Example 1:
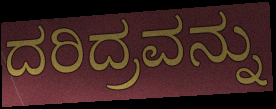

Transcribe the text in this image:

ದರಿದ್ರವನ್ನು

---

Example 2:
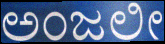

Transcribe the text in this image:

ಅಂಜಲೀ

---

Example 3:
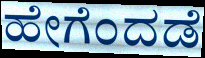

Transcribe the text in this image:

ಹೇಗೆಂದಡೆ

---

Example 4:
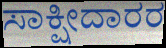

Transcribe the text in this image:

ಸಾಕ್ಷೀದಾರರ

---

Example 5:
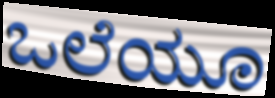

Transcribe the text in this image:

ಒಲೆಯೂ